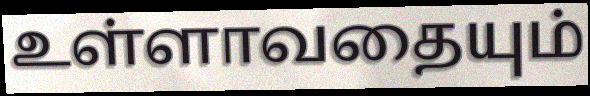
உள்ளாவதையும்